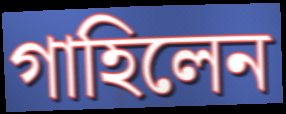
গাহিলেন